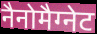
नैनोमैग्नेट